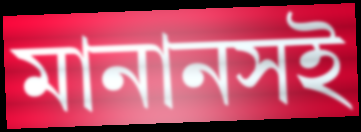
মানানসই